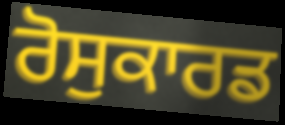
ਰੋਸੁਕਾਰਡ